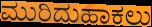
ಮುರಿದುಹಾಕಲು